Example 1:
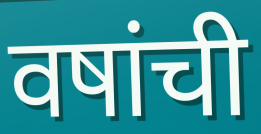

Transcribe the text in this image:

वषांची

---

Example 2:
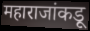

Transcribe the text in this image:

महाराजांकडू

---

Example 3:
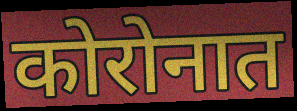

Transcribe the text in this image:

कोरोनात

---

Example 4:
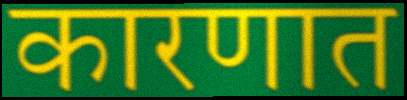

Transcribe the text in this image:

कारणात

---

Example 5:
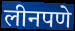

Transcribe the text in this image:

लीनपणे